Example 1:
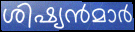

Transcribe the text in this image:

ശിഷ്യൻമാർ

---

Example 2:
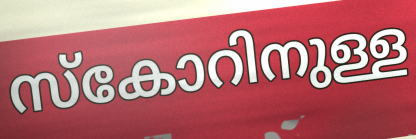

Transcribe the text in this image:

സ്കോറിനുള്ള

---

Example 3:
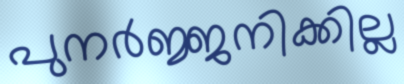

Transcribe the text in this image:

പുനർജ്ജനിക്കില്ല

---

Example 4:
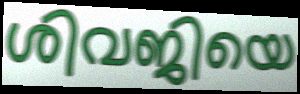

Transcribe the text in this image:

ശിവജിയെ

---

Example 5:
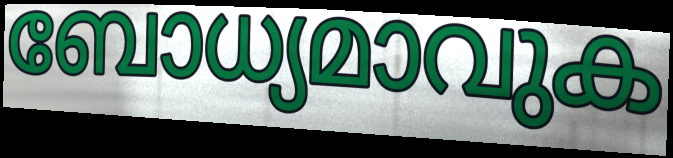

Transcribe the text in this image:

ബോധ്യമാവുക